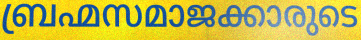
ബ്രഹ്മസമാജക്കാരുടെ